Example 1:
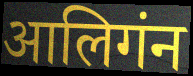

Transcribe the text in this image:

आलिगंन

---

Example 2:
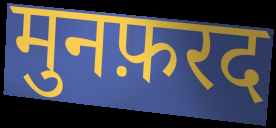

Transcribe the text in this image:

मुनफ़रद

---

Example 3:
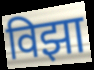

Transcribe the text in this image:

विझा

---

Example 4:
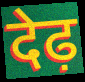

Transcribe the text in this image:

देढ़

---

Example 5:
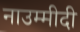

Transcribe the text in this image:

नाउम्मीदी